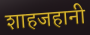
शाहजहानी